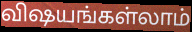
விஷயங்கள்லாம்